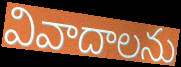
వివాదాలను